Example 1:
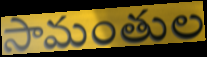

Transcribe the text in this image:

సామంతుల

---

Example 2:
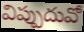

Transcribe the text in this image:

విప్పుదువో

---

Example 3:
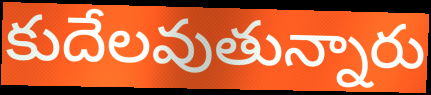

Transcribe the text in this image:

కుదేలవుతున్నారు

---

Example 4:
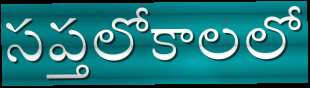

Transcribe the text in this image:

సప్తలోకాలలో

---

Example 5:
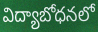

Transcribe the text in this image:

విద్యాబోధనలో